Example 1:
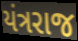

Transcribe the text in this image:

યંત્રરાજ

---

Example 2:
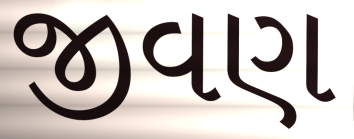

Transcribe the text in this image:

જીવણ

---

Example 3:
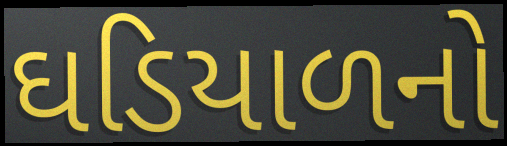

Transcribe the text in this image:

ઘડિયાળનો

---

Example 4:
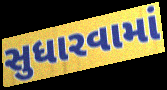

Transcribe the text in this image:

સુધારવામાં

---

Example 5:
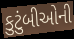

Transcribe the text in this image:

કુટુંબીઓની